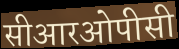
सीआरओपीसी